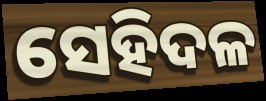
ସେହିଦଳ